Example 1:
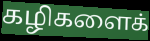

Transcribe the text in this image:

கழிகளைக்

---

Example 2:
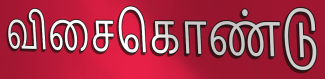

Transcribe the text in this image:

விசைகொண்டு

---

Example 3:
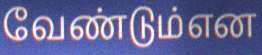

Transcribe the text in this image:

வேண்டும்என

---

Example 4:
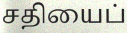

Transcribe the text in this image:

சதியைப்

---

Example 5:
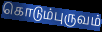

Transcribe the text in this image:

கொடும்புருவம்